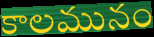
కాలమునం